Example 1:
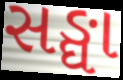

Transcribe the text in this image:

સઙ્ઘા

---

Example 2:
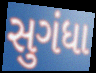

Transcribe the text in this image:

સુગંધા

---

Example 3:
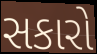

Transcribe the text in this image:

સકારો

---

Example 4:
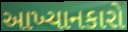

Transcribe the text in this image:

આખ્યાનકારો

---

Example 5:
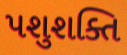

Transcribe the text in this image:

પશુશક્તિ